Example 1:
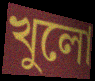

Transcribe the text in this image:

খুলো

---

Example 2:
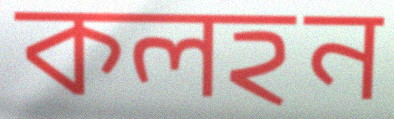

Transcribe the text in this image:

কলহন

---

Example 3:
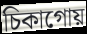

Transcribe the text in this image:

চিকাগোয়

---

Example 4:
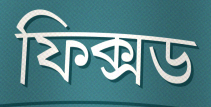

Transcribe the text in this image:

ফিক্সড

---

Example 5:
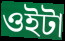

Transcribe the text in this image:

ওইটা